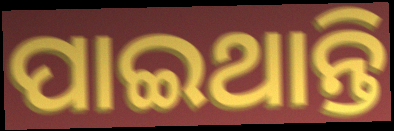
ପାଇଥାନ୍ତି